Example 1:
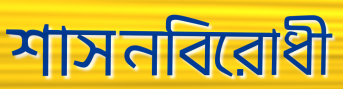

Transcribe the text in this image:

শাসনবিরোধী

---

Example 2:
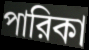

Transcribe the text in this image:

পারিকা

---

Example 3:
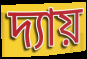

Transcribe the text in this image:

দ্যায়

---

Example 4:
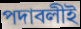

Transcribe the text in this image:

পদাবলীই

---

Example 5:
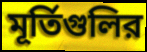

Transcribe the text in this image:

মূর্তিগুলির